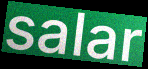
salar